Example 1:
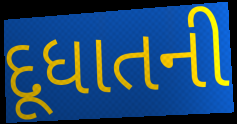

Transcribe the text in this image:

દૂધાતની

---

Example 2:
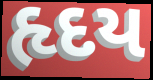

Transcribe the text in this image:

હૃદય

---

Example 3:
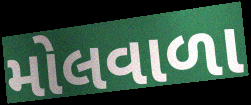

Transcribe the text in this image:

મોલવાળા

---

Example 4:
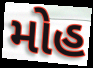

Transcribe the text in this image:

મોહ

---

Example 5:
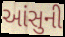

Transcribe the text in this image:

આંસુની